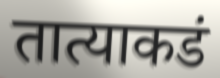
तात्याकडं